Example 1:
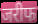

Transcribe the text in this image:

जरीफ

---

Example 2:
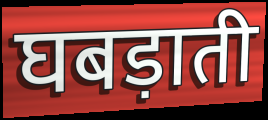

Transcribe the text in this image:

घबड़ाती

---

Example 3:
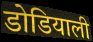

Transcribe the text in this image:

डोडियाली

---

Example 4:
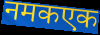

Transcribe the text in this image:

नमकएक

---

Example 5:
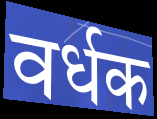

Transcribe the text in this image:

वर्धक